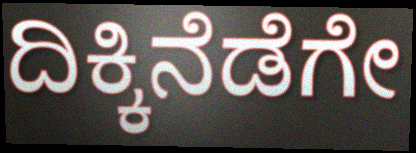
ದಿಕ್ಕಿನೆಡೆಗೇ